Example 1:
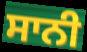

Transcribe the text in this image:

ਸਾਨੀ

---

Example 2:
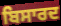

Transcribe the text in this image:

ਬਿਸਾਰਦ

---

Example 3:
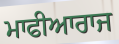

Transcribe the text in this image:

ਮਾਫੀਆਰਾਜ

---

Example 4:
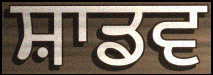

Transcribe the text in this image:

ਸ਼ਾਡਵ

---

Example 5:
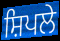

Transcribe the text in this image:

ਸ਼ਿਪਲੇ